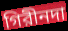
গিরীনদা